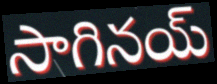
సాగినయ్